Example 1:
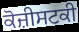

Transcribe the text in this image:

ਕੋਜ਼ੀਸਟਕੀ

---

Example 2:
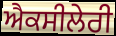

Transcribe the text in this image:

ਐਕਸੀਲੇਰੀ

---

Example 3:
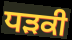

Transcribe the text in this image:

ਧੜਕੀ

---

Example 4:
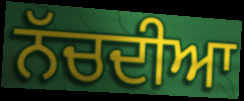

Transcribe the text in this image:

ਨੱਚਦੀਆ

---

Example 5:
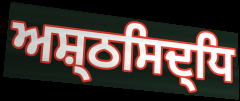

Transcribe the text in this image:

ਅਸ਼੍ਠਸਿਦ੍ਧਿ